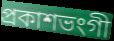
প্ৰকাশভংগী